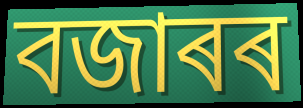
বজাৰৰ